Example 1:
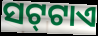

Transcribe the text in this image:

ସଟ୍‍ଟାଏ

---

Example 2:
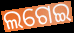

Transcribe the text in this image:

ଲଗେଇ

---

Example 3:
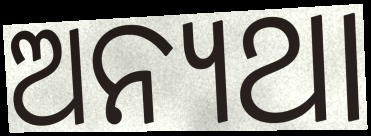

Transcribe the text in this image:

ଅନ୍ୟଥା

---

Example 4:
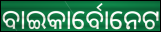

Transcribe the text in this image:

ବାଇକାର୍ବୋନେଟ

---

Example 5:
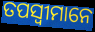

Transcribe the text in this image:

ତପସ୍ୱୀମାନେ